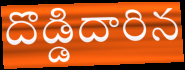
దొడ్డిదారిన